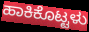
ಹಾಕಿಕೊಟ್ಟಳು